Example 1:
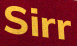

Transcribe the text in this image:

Sirr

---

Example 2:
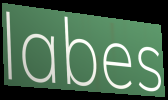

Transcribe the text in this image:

Iabes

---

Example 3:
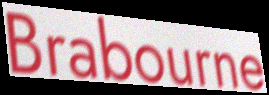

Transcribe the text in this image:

Brabourne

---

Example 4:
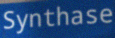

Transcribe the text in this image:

Synthase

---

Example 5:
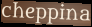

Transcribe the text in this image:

cheppina